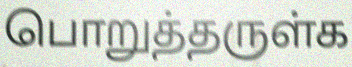
பொறுத்தருள்க